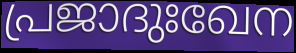
പ്രജാദുഃഖേന